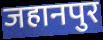
जहानपुर